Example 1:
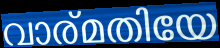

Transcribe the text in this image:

വാര്മതിയേ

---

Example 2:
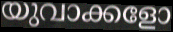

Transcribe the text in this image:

യുവാക്കളോ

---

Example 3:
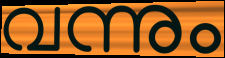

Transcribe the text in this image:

വന്നും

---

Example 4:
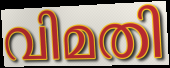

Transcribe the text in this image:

വിമതി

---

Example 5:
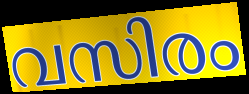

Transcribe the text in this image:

വസിരം